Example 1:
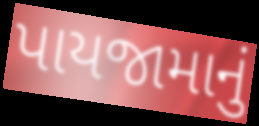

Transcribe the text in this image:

પાયજામાનું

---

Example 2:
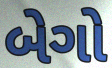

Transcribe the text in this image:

બેગો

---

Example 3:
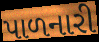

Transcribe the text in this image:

પાળનારી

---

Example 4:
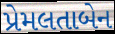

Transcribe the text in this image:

પ્રેમલતાબેન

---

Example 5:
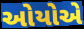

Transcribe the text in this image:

ઓયોએ